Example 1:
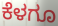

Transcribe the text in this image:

ಕೆಳಗೂ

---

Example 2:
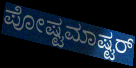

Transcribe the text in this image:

ಪೋಷ್ಟಮಾಷ್ಟರ್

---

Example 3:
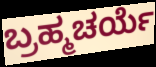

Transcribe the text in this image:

ಬ್ರಹ್ಮಚರ್ಯೆ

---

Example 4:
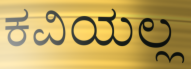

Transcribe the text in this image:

ಕವಿಯಲ್ಲ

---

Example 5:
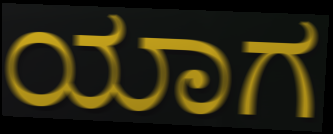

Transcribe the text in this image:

ಯಾಗ